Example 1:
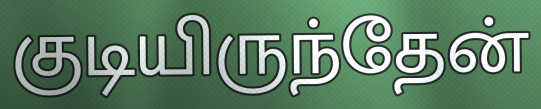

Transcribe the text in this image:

குடியிருந்தேன்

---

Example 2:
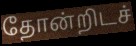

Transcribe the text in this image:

தோன்றிடச்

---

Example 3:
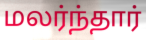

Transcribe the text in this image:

மலர்ந்தார்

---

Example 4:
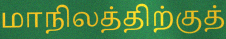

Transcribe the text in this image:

மாநிலத்திற்குத்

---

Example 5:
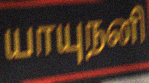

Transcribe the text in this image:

யாயுநனி